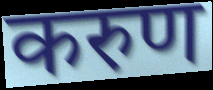
करुण